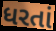
ધરતાં